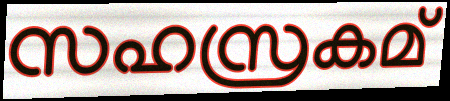
സഹസ്രകമ്